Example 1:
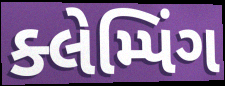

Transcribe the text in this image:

ક્લેમ્પિંગ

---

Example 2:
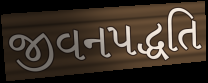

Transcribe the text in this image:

જીવનપદ્ધતિ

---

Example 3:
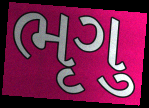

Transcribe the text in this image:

ભૃગુ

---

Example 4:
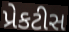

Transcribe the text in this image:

પ્રેકટીસ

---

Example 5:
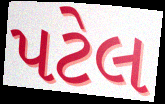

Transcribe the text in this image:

પટેલ